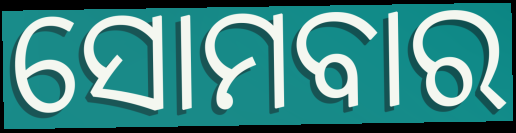
ସୋମବାର